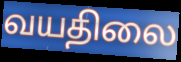
வயதிலை